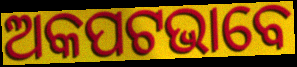
ଅକପଟଭାବେ